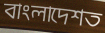
বাংলাদেশত